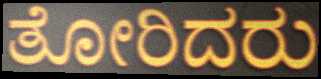
ತೋರಿದರು